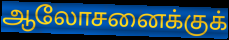
ஆலோசனைக்குக்